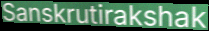
Sanskrutirakshak